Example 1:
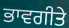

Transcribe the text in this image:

ਭਾਵਗੀਤੇ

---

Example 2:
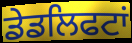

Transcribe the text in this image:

ਡੇਡਲਿਫਟਾਂ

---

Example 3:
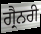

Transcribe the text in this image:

ਗ੍ਰੈਨਰੀ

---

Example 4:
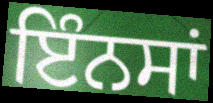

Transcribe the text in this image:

ਇੰਨਸਾਂ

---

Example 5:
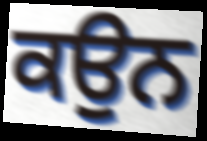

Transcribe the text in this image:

ਕਉਨ